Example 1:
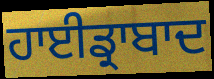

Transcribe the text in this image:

ਹਾਈਡ੍ਰਾਬਾਦ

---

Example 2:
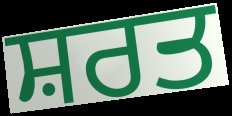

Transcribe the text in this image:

ਸ਼ਰਤ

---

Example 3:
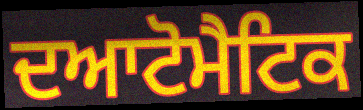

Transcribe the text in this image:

ਦਆਟੋਮੈਟਿਕ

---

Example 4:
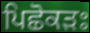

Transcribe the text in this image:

ਪਿਛੋਕੜਃ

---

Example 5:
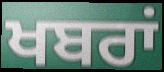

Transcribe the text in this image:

ਖਬਰਾਂ